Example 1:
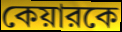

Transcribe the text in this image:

কেয়ারকে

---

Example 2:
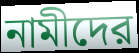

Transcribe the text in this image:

নামীদের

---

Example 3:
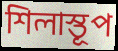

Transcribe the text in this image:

শিলাস্তূপ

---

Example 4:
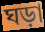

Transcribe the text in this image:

ঘড়া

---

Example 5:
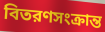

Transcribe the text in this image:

বিতরণসংক্রান্ত